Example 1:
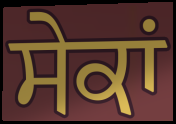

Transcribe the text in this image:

ਸੇਕਾਂ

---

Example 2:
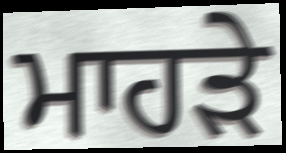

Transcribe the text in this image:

ਮਾਹੜੇ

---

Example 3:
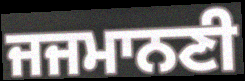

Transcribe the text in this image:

ਜਜਮਾਨਣੀ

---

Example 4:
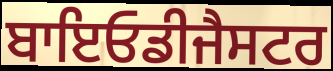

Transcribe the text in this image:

ਬਾਇਓਡੀਜੈਸਟਰ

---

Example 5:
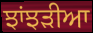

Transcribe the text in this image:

ਝਾਂਝੜੀਆ